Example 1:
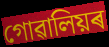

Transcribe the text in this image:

গোৱালিয়ৰ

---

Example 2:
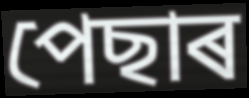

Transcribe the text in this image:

পেছাৰ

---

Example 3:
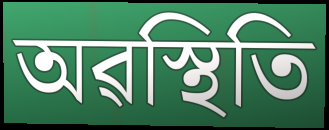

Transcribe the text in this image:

অৱস্থিতি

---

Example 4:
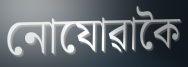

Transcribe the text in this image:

নোযোৱাকৈ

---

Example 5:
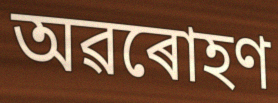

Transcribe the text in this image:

অৱৰোহণ